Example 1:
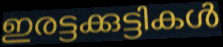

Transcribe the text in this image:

ഇരട്ടക്കുട്ടികൾ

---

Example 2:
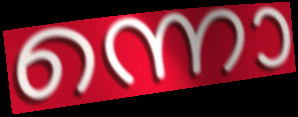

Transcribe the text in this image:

ന്നൊ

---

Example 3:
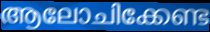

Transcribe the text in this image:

ആലോചിക്കേണ്ട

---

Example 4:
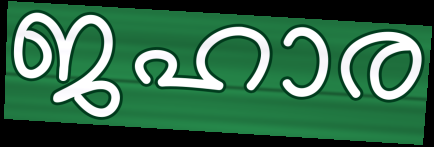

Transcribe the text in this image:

ജഹാര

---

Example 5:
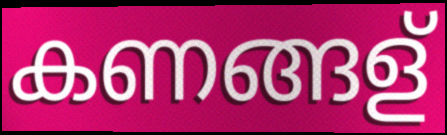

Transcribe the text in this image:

കണങ്ങള്